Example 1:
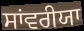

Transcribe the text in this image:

ਸਾਂਵਰੀਯਾ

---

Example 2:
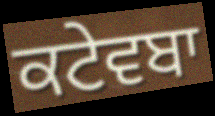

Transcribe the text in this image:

ਕਟੇਵਬਾ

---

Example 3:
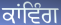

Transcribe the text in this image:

ਕਾਂਵਿੰਗ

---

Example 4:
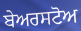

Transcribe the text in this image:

ਬੇਅਰਸਟੋਅ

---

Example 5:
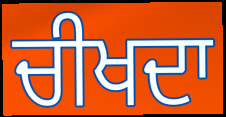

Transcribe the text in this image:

ਚੀਖਦਾ